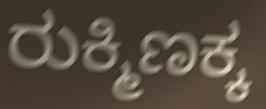
ರುಕ್ಮಿಣಕ್ಕ